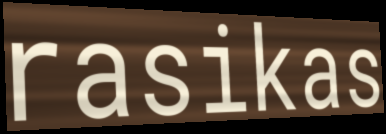
rasikas